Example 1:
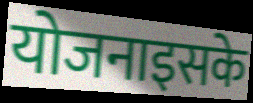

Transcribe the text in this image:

योजनाइसके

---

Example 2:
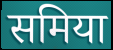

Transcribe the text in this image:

समिया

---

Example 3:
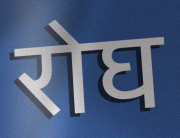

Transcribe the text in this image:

रोघ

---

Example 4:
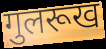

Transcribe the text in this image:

गुलरूख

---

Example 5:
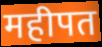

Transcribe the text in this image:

महीपत